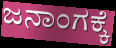
ಜನಾಂಗಕ್ಕೆ